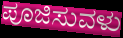
ಪೂಜಿಸುವಳು